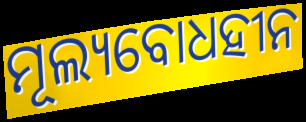
ମୂଲ୍ୟବୋଧହୀନ